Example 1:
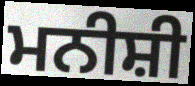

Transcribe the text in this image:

ਮਨੀਸ਼ੀ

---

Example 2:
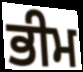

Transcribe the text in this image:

ਭੀਮ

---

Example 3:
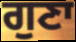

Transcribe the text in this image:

ਗੁਣਾ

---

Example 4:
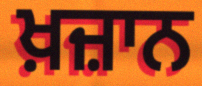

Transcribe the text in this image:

ਖ਼ਜ਼ਾਨ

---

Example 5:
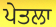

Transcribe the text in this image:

ਪੇਤਲਾ